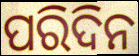
ପରିଦିନ